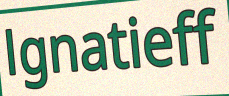
Ignatieff